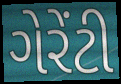
ગેરેંટી